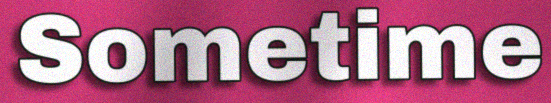
Sometime